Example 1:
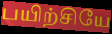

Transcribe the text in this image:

பயிற்சியே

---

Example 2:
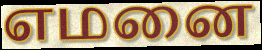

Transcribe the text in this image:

எமனை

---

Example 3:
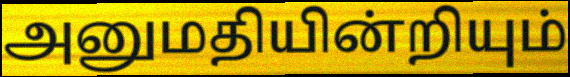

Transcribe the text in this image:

அனுமதியின்றியும்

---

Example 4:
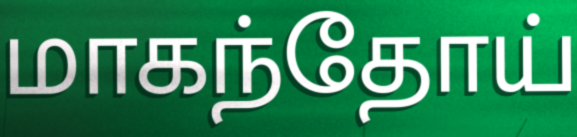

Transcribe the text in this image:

மாகந்தோய்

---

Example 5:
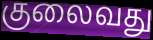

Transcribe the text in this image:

குலைவது